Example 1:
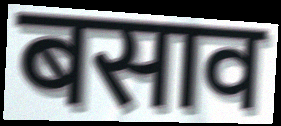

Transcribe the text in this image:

बसाव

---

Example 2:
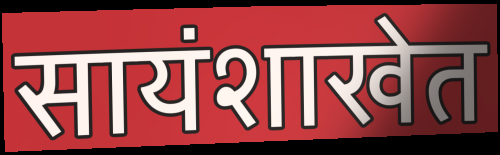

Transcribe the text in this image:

सायंशाखेत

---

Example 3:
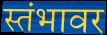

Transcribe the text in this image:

स्तंभावर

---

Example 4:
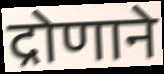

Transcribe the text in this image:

द्रोणाने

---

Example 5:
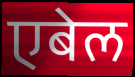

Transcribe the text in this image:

एबेल